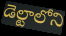
డెల్టాలోని